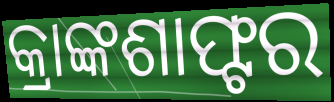
କ୍ରାଙ୍କଶାଫ୍ଟର